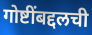
गोष्टींबद्दलची